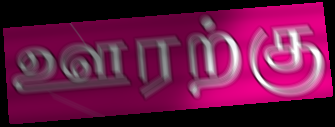
ஊரற்கு